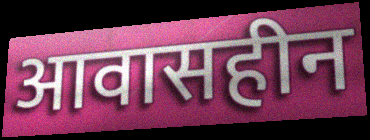
आवासहीन